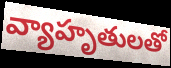
వ్యాహృతులతో